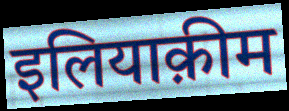
इलियाक़ीम